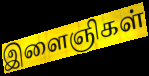
இளைஞிகள்